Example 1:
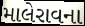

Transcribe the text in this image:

માલેરાવના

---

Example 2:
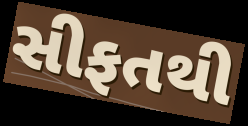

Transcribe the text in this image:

સીફતથી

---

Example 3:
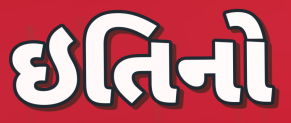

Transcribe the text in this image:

ઇતિનો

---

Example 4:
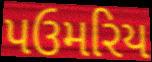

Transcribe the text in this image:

પઉમરિય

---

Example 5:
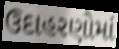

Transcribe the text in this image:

ઉદાહરણોમાં